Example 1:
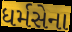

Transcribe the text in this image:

ધર્મસેના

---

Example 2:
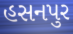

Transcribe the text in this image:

હસનપુર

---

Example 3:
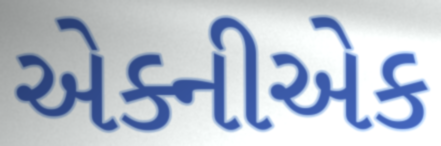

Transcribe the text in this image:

એક્નીએક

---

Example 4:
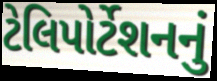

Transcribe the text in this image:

ટેલિપોર્ટેશનનું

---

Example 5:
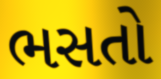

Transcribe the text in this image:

ભસતો